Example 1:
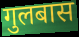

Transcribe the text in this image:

गुलबास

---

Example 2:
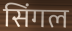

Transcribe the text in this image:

सिंगल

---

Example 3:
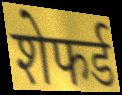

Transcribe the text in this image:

शेफर्ड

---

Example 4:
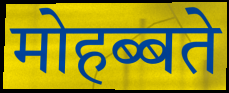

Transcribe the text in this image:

मोहब्बते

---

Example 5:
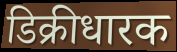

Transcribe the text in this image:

डिक्रीधारक